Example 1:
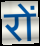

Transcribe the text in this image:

रों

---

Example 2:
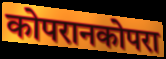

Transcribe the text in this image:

कोपरानकोपरा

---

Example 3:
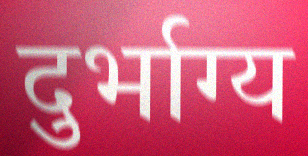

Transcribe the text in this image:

दुर्भाग्य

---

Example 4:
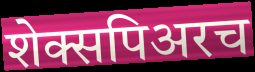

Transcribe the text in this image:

शेक्सपिअरच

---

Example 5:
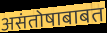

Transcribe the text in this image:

असंतोषाबाबत